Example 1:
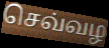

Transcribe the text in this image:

செவ்வழ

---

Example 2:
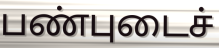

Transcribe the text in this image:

பண்புடைச்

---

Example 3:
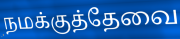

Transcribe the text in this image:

நமக்குத்தேவை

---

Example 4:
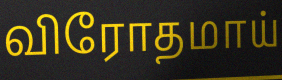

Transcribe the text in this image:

விரோதமாய்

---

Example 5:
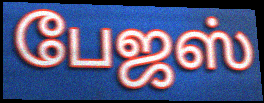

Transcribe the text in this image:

பேஜஸ்